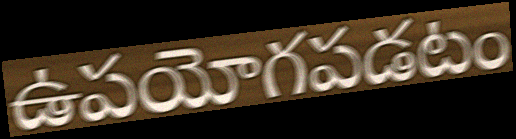
ఉపయోగపడటం